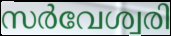
സർവേശ്വരി